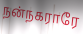
நன்நகராரே